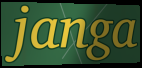
janga